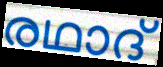
രഥാദ്